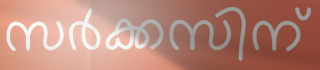
സർക്കസിന്